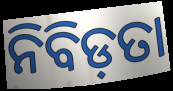
ନିବିଡ଼ତା